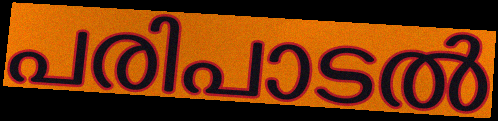
പരിപാടൽ